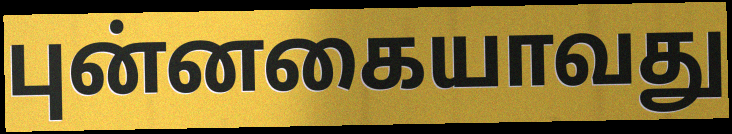
புன்னகையாவது